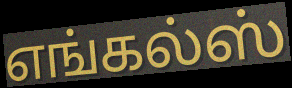
எங்கல்ஸ்